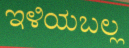
ಇಳಿಯಬಲ್ಲ